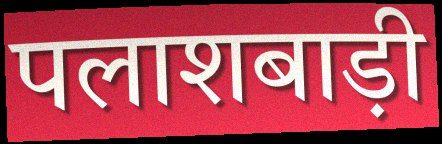
पलाशबाड़ी